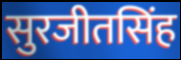
सुरजीतसिंह